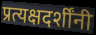
प्रत्यक्षदर्शींनी